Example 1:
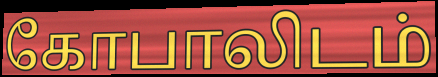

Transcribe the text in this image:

கோபாலிடம்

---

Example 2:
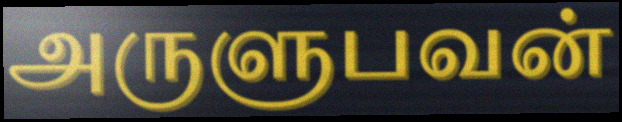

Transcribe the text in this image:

அருளுபவன்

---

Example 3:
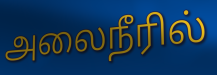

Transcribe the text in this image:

அலைநீரில்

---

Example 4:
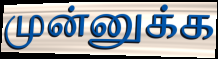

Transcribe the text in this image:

முன்னுக்க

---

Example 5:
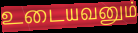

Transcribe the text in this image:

உடையவனும்